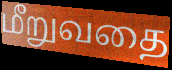
மீறுவதை